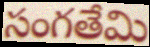
సంగతేమి